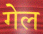
गेल